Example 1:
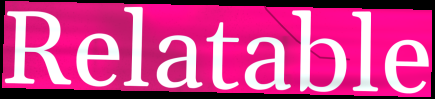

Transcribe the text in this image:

Relatable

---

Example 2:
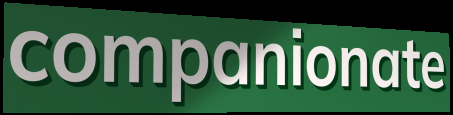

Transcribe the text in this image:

companionate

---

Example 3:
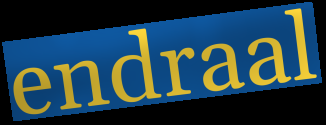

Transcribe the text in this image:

endraal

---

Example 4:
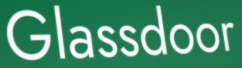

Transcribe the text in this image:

Glassdoor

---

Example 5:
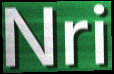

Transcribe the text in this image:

Nri